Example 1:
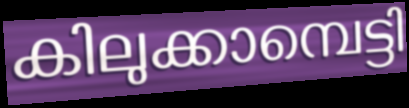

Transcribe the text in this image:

കിലുക്കാമ്പെട്ടി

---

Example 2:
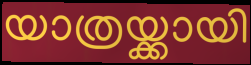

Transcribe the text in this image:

യാത്രയ്ക്കായി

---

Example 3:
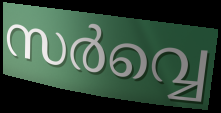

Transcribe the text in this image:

സർവ്വെ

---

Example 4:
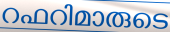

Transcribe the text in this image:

റഫറിമാരുടെ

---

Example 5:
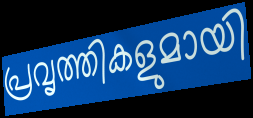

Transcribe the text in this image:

പ്രവൃത്തികളുമായി